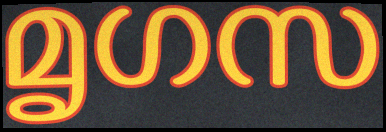
മൃഗസ